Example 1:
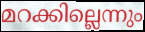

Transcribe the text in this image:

മറക്കില്ലെന്നും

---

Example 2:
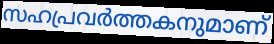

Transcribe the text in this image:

സഹപ്രവർത്തകനുമാണ്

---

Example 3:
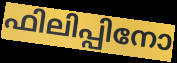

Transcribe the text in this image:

ഫിലിപ്പിനോ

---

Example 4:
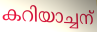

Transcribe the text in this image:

കറിയാച്ചന്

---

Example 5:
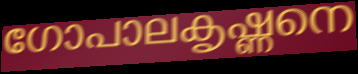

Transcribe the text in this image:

ഗോപാലകൃഷ്ണനെ